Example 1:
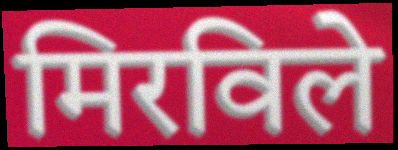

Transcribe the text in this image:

मिरविले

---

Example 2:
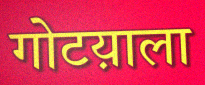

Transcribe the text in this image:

गोटय़ाला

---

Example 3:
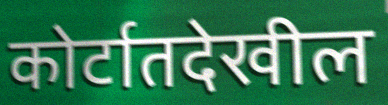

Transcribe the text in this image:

कोर्टातदेखील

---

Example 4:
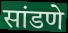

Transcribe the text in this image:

सांडणे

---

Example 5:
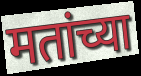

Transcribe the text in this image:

मतांच्या